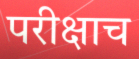
परीक्षाच